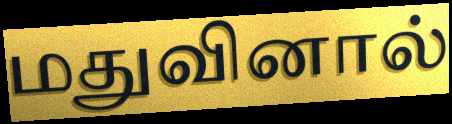
மதுவினால்